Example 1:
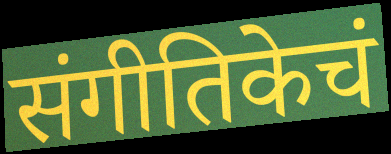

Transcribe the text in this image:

संगीतिकेचं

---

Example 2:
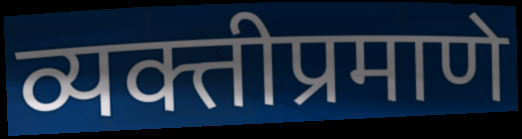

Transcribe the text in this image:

व्यक्तीप्रमाणे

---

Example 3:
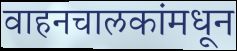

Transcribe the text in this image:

वाहनचालकांमधून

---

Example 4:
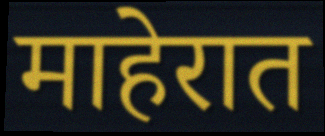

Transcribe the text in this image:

माहेरात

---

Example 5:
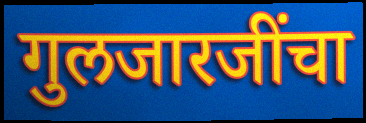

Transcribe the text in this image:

गुलजारजींचा